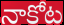
నాకోట